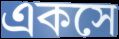
একসে